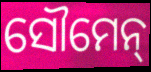
ସୌମେନ୍